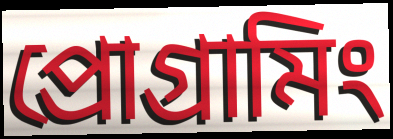
প্রোগ্রামিং